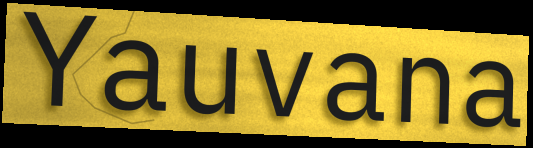
Yauvana